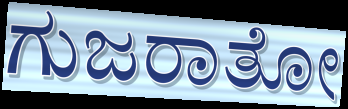
ಗುಜರಾತೋ